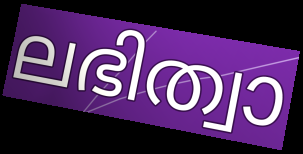
ലഭിത്വാ